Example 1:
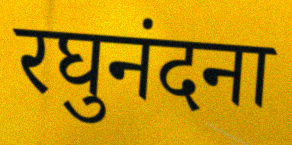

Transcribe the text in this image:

रघुनंदना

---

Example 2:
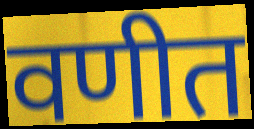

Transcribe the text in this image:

वणीत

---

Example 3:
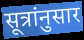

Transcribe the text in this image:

सूत्रांनुसार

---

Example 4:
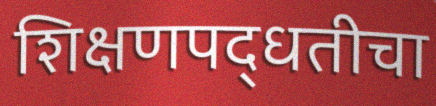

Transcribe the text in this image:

शिक्षणपद्धतीचा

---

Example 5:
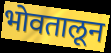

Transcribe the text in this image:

भोवतालून